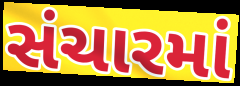
સંચારમાં